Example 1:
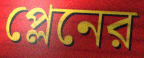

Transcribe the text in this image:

প্লেনের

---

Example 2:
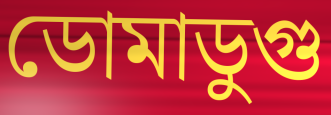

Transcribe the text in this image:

ডোমাডুগু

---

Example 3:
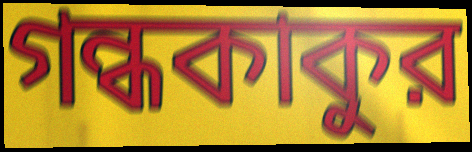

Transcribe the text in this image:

গন্ধকাকুর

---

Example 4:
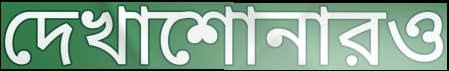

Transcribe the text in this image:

দেখাশোনারও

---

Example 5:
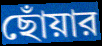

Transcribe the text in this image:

ছোঁয়ার